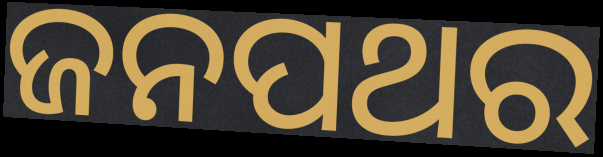
ଜନପଥର